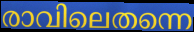
രാവിലെതന്നെ